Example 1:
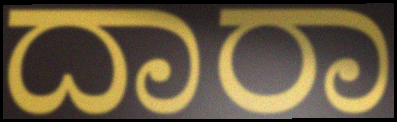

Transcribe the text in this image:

ದಾರಾ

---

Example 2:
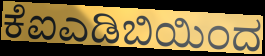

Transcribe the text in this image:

ಕೆಐಎಡಿಬಿಯಿಂದ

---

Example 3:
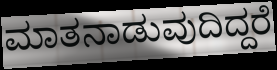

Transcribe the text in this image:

ಮಾತನಾಡುವುದಿದ್ದರೆ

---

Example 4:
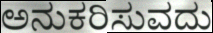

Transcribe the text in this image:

ಅನುಕರಿಸುವದು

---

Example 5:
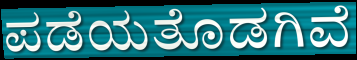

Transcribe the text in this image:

ಪಡೆಯತೊಡಗಿವೆ